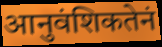
आनुवंशिकतेनं